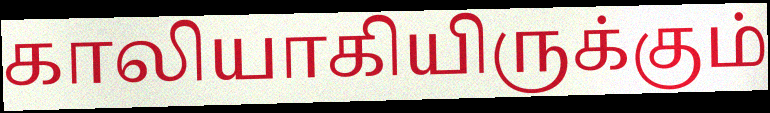
காலியாகியிருக்கும்